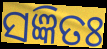
ସଜ୍ଞିତଃ